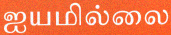
ஐயமில்லை